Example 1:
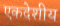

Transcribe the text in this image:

एकदेशीय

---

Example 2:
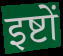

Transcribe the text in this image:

इष्टों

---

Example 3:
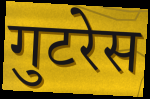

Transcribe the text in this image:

गुटरेस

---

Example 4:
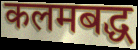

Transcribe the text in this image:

कलमबद्ध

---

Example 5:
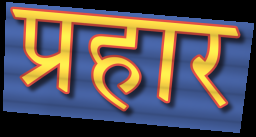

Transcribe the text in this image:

प्रहार